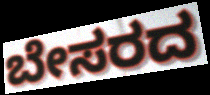
ಬೇಸರದ